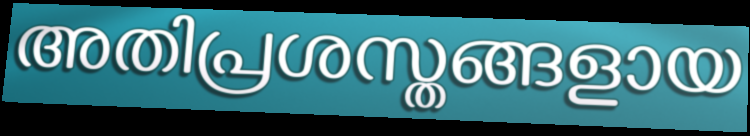
അതിപ്രശസ്തങ്ങളായ